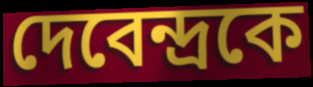
দেবেন্দ্রকে